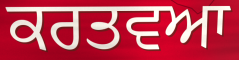
ਕਰਤਵਆ